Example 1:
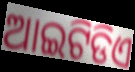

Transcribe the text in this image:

ଆଇଟିଡିଏ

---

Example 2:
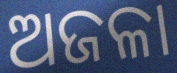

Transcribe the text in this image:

ଅଜଳା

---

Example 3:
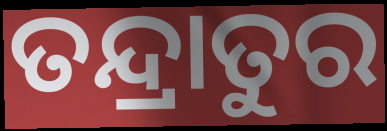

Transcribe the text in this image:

ତନ୍ଦ୍ରାତୁର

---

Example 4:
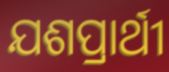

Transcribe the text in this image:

ଯଶପ୍ରାର୍ଥୀ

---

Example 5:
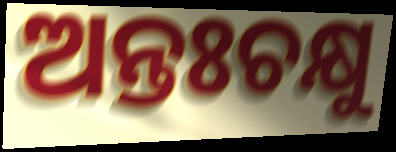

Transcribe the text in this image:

ଅନ୍ତଃଚକ୍ଷୁ